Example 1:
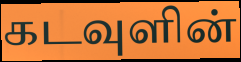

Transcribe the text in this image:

கடவுளின்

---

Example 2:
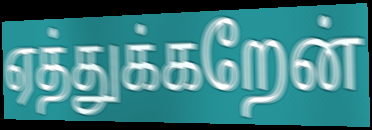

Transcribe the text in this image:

ஏத்துக்கறேன்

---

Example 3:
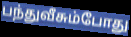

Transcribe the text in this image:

பந்துவீசும்போது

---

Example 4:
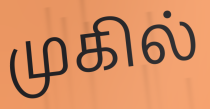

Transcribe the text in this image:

முகில்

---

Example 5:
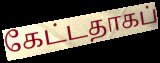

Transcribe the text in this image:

கேட்டதாகப்